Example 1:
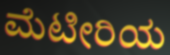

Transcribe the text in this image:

ಮೆಟೀರಿಯ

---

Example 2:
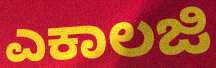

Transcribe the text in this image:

ಎಕಾಲಜಿ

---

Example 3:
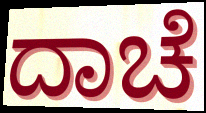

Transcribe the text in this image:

ದಾಚೆ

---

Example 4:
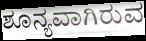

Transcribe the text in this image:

ಶೂನ್ಯವಾಗಿರುವ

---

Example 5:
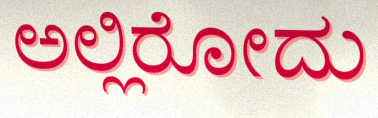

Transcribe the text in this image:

ಅಲ್ಲಿರೋದು